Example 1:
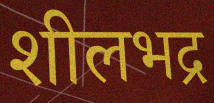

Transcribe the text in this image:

शीलभद्र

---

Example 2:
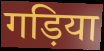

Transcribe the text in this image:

गड़िया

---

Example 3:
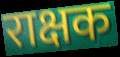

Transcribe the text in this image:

राक्षक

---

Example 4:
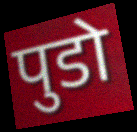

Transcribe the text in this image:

पुडो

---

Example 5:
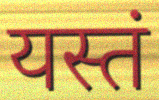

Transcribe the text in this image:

यस्तं